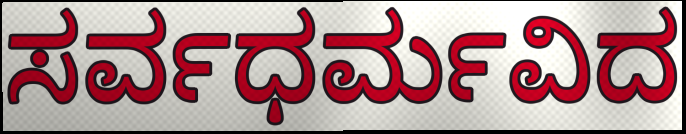
ಸರ್ವಧರ್ಮವಿದ